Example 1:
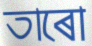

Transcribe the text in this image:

তাৰো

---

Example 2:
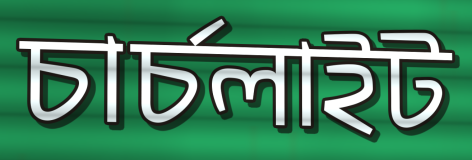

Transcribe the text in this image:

চাৰ্চলাইট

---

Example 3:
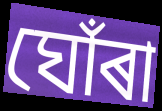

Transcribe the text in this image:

ঘোঁৰা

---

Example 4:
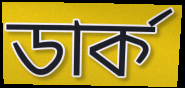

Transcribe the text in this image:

ডাৰ্ক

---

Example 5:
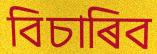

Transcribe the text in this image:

বিচাৰিব